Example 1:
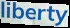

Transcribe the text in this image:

liberty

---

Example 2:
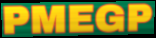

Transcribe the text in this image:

PMEGP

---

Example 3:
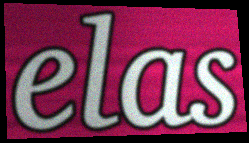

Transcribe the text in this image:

elas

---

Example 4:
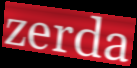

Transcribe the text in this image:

zerda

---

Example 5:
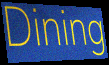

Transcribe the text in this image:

Dining